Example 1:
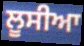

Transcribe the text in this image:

ਲੂਸੀਆ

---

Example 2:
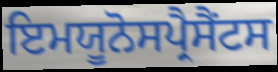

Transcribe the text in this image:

ਇਮਯੂਨੋਸਪ੍ਰੈਸੈਂਟਸ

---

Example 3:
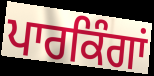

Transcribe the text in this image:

ਪਾਰਕਿੰਗਾਂ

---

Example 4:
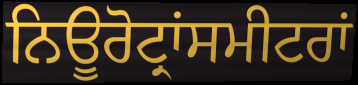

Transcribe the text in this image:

ਨਿਊਰੋਟ੍ਰਾਂਸਮੀਟਰਾਂ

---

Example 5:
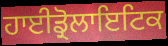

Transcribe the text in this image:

ਹਾਈਡ੍ਰੋਲਾਇਟਿਕ